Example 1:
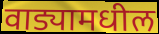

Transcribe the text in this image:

वाड्यामधील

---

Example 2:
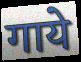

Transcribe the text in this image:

गाये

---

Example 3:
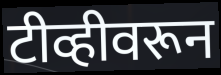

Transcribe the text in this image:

टीव्हीवरून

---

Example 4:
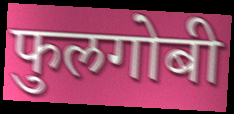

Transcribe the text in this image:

फुलगोबी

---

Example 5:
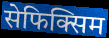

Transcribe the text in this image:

सेफिक्सिम